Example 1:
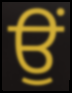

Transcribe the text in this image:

ਉਂ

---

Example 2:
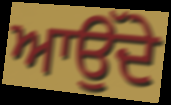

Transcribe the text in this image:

ਆਉੱਦੇ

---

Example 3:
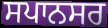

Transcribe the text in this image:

ਸਪਾਨਸਰ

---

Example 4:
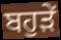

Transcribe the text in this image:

ਬਹੁੜੇਂ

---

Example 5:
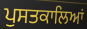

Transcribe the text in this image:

ਪੁਸਤਕਾਲਿਆਂ